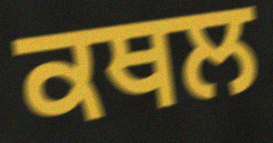
ਕਥਲ